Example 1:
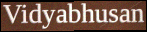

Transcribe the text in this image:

Vidyabhusan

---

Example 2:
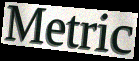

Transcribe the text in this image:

Metric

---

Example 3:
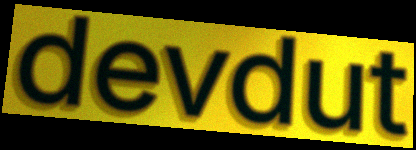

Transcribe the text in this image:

devdut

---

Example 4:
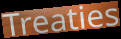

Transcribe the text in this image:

Treaties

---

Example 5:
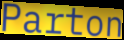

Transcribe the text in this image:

Parton